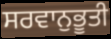
ਸਰਵਾਨੁਭੂਤੀ